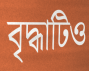
বৃদ্ধাটিও